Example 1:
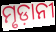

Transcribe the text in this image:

ମୃଡ଼ାନୀ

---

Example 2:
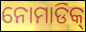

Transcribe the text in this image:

ନୋମାଡିକ୍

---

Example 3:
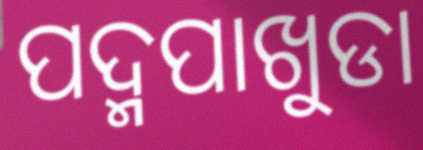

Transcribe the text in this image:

ପଦ୍ମପାଖୁଡା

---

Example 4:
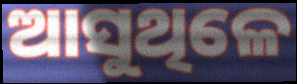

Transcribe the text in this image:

ଆସୁଥିଳେ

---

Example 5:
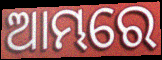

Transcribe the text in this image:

ଆମ୍ଭରେ